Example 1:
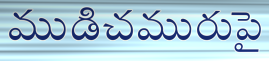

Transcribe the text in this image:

ముడిచమురుపై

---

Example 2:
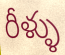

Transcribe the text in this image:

రీళ్ళు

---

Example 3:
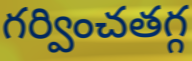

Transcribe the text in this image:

గర్వించతగ్గ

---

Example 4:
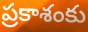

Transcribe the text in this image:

ప్రకాశంకు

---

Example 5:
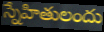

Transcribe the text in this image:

స్నేహితులందు